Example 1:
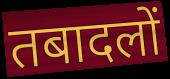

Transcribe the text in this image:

तबादलों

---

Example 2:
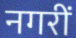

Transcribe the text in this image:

नगरीं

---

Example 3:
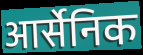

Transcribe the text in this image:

आर्सेनिक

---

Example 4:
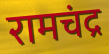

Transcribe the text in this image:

रामचंद्र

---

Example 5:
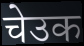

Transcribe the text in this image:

चेउक